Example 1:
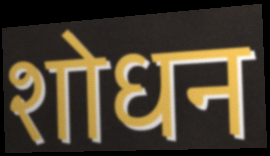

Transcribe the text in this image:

शोधन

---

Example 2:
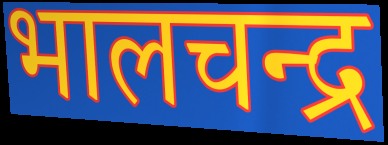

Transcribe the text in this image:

भालचन्द्र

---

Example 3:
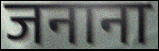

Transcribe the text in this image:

जनाना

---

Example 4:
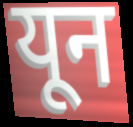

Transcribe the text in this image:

यून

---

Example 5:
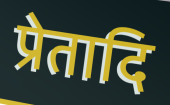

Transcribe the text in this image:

प्रेतादि